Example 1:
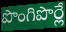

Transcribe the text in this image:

పొంగిపొర్లే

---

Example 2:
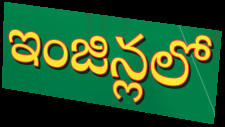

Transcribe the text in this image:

ఇంజిన్లలో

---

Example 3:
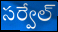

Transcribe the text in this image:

సర్వేల్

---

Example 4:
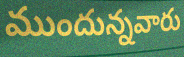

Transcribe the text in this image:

ముందున్నవారు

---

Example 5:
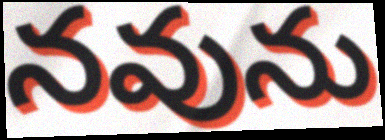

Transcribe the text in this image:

నవును